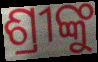
ଶ୍ରୀଙ୍କୁ